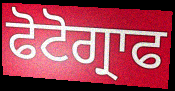
ਫੋਟੋਗ੍ਰਾਫ